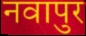
नवापुर